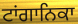
ਟਾਂਗਾਨਿਕਾ